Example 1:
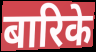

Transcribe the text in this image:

बारिके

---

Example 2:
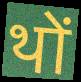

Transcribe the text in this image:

थों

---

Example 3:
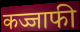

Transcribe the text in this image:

कज्जाफी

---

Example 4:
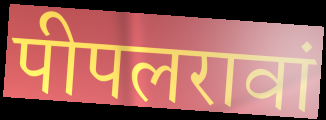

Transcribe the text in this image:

पीपलरावां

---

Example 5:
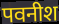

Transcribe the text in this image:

पवनीश